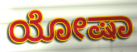
ಯೋಷಾ